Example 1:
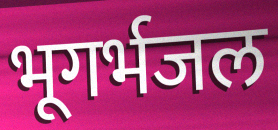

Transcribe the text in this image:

भूगर्भजल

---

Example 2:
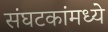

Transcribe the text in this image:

संघटकांमध्ये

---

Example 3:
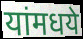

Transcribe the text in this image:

यांमधये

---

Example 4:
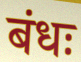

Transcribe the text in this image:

बंधः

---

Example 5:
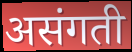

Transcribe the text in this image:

असंगती